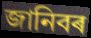
জানিবৰ